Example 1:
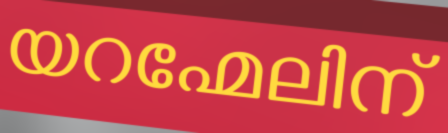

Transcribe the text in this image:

യറഹ്മേലിന്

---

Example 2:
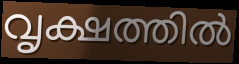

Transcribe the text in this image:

വൃക്ഷത്തിൽ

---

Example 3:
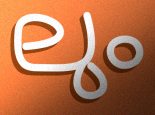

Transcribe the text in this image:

ലും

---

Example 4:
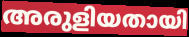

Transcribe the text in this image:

അരുളിയതായി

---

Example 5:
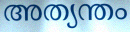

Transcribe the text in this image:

അത്യന്തം